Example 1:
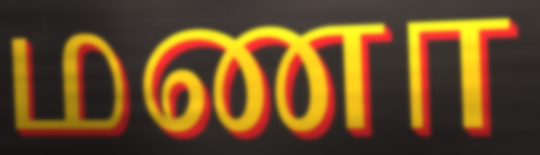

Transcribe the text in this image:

மணா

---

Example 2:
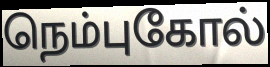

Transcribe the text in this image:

நெம்புகோல்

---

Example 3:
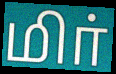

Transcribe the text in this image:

மிர்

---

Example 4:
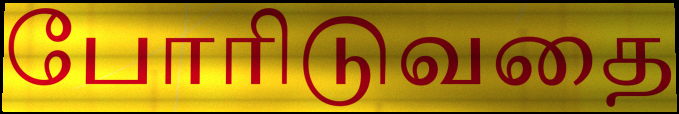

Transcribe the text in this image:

போரிடுவதை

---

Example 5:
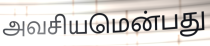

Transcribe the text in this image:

அவசியமென்பது